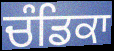
ਚੰਡਿਕਾ